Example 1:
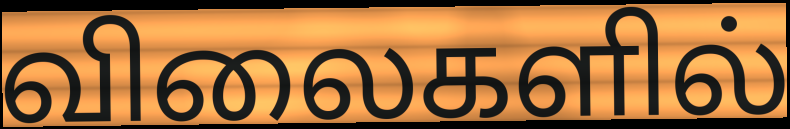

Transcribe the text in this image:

விலைகளில்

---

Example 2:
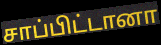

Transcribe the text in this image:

சாப்பிட்டானா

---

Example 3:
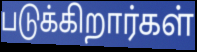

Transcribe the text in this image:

படுக்கிறார்கள்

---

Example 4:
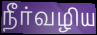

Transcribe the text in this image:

நீர்வழிய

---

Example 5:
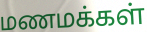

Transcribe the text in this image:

மணமக்கள்